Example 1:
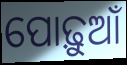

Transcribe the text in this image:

ପୋଢ଼ୁଆଁ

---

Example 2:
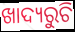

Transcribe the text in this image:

ଖାଦ୍ୟରୁଚି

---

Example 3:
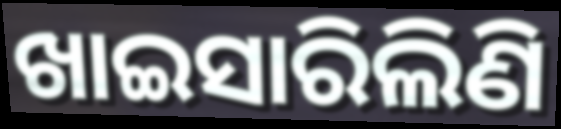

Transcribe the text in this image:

ଖାଇସାରିଲିଣି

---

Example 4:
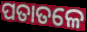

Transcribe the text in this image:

ପତାତଳେ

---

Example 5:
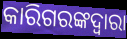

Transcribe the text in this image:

କାରିଗରଙ୍କଦ୍ୱାରା